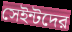
সেইন্টদের